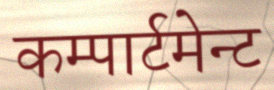
कम्पार्टमेन्ट